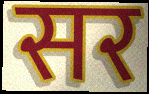
सर